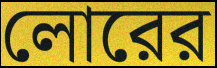
লোরের